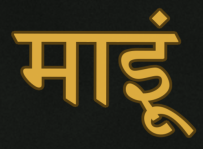
माइूं